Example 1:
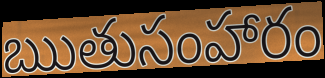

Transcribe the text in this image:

ఋతుసంహారం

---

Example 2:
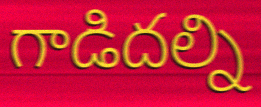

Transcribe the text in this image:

గాడిదల్ని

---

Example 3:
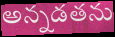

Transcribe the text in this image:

అన్నడతను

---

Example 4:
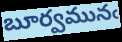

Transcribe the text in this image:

బూర్వమునఁ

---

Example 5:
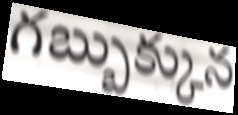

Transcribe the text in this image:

గబ్బుక్కున